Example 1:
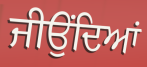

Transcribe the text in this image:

ਜੀਉਂਦਿਆਂ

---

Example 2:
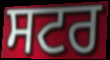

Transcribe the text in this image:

ਸਟਰ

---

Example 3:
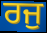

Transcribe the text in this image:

ਰਜੁ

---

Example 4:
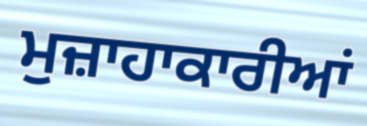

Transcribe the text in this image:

ਮੁਜ਼ਾਹਾਕਾਰੀਆਂ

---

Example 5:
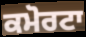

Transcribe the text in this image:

ਕਮੋਰਟਾ